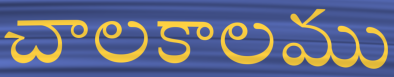
చాలకాలము